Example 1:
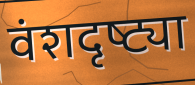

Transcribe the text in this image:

वंशदृष्ट्या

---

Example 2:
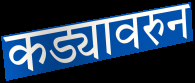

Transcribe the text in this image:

कड्यावरुन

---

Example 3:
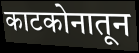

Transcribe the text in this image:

काटकोनातून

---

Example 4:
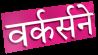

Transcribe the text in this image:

वर्कर्सने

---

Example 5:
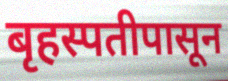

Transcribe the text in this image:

बृहस्पतीपासून